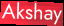
Akshay